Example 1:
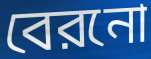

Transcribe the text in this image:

বেরনো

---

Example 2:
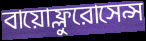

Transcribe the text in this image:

বায়োফ্লুরোসেন্স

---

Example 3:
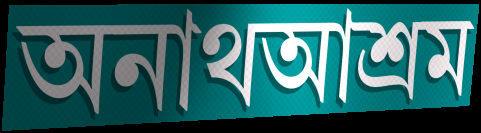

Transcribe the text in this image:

অনাথআশ্রম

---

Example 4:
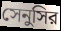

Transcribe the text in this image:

সেনুসির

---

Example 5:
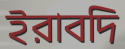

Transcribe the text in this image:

ইরাবদি